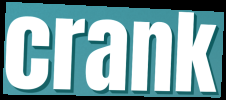
crank